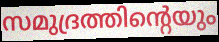
സമുദ്രത്തിന്റെയും